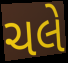
ચલે